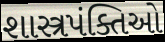
શાસ્ત્રપંક્તિઓ